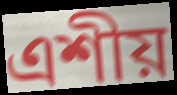
এশীয়